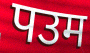
पउम